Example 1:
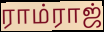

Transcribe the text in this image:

ராம்ராஜ்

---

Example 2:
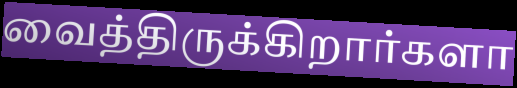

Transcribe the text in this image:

வைத்திருக்கிறார்களா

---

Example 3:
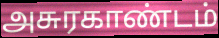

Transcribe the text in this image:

அசுரகாண்டம்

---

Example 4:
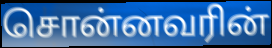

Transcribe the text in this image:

சொன்னவரின்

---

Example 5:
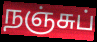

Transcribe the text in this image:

நஞ்சுப்